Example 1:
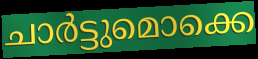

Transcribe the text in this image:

ചാർട്ടുമൊക്കെ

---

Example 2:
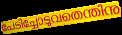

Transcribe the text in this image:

പേടിച്ചോടുവതെന്തിനു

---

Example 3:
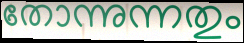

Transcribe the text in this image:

തോന്നുന്നതും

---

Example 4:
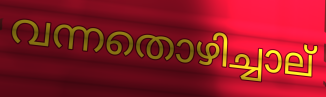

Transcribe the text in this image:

വന്നതൊഴിച്ചാല്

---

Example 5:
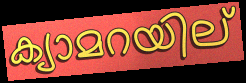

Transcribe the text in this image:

ക്യാമറയില്